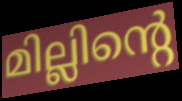
മില്ലിന്റെ